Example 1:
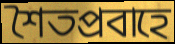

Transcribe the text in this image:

শৈতপ্রবাহে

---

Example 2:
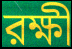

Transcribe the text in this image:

রক্ষী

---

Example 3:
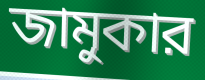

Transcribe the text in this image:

জামুকার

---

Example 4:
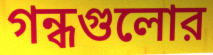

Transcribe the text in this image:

গন্ধগুলোর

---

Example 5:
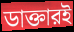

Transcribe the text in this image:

ডাক্তারই